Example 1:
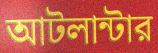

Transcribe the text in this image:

আটলান্টার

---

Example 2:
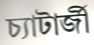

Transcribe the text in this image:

চ্যাটার্জী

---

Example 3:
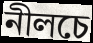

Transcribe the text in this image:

নীলচে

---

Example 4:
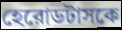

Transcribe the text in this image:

হেরোডটাসকে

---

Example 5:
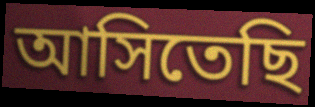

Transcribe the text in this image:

আসিতেছি